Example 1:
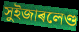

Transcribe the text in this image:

সুইজাৰলেণ্ড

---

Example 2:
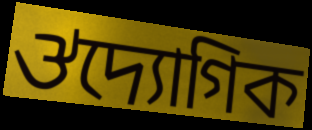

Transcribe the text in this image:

ঔদ্যোগিক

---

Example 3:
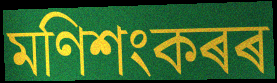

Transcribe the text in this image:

মণিশংকৰৰ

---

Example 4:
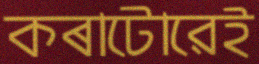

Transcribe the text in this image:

কৰাটোৱেই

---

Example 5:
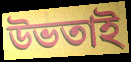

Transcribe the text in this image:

উভতাই